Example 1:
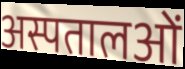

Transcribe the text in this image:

अस्पतालओं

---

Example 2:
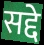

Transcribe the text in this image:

सद्दे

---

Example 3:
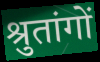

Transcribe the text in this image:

श्रुतांगों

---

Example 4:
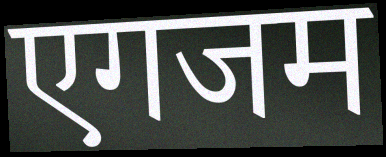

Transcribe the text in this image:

एगजम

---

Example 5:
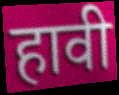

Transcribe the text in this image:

हावी